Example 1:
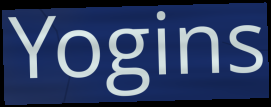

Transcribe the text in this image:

Yogins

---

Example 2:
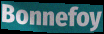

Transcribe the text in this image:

Bonnefoy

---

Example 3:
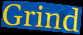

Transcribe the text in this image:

Grind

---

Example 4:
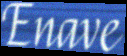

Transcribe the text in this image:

Enave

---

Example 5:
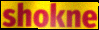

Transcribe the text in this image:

shokne